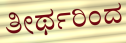
ತೀರ್ಥರಿಂದ